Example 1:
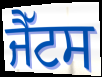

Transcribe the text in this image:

ਜੈੱਟਸ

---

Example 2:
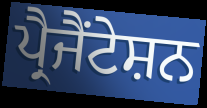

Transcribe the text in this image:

ਪ੍ਰੈਜੈਂਟੇਸ਼ਨ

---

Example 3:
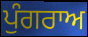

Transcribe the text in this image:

ਪੁੰਗਰਾਅ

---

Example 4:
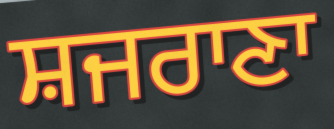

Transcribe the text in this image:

ਸ਼ਜਰਾਣਾ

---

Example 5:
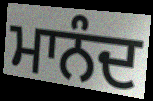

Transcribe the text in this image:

ਮਾਨੰਦ